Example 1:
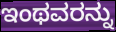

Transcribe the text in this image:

ಇಂಥವರನ್ನು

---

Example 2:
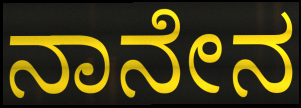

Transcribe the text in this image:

ನಾನೇನ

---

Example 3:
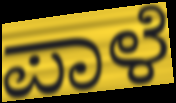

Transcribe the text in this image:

ಪಾಳೆ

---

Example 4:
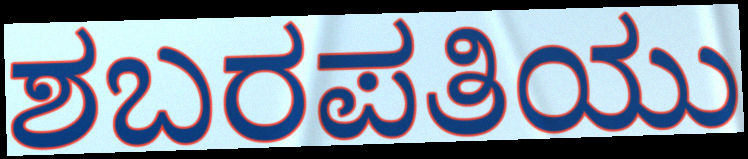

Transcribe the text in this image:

ಶಬರಪತಿಯು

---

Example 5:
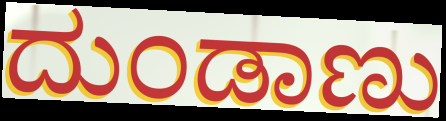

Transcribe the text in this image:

ದುಂಡಾಣು